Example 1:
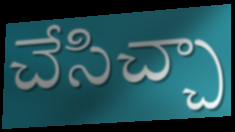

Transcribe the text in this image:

చేసిచ్చా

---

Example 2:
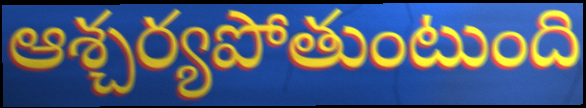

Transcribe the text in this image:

ఆశ్చర్యపోతుంటుంది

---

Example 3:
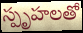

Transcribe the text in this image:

స్పృహలతో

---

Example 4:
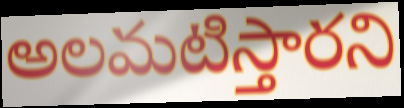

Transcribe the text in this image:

అలమటిస్తారని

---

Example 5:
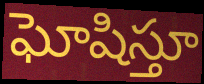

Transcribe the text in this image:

ఘోషిస్తూ